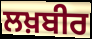
ਲਖ਼ਬੀਰ